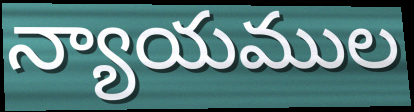
న్యాయముల